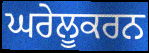
ਘਰੇਲੂਕਰਨ